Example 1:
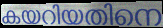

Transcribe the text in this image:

കയറിയതിനെ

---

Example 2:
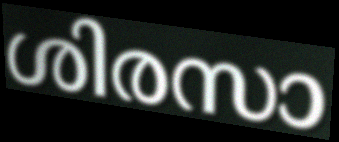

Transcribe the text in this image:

ശിരസാ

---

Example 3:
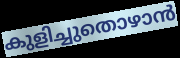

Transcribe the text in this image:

കുളിച്ചുതൊഴാൻ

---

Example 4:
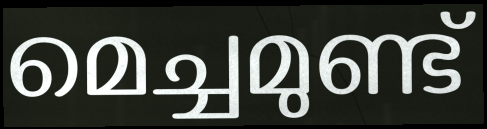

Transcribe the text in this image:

മെച്ചമുണ്ട്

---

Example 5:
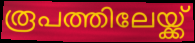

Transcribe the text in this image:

രൂപത്തിലേയ്ക്ക്